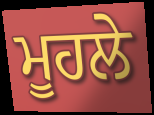
ਮੂਹਲੇ